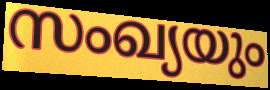
സംഖ്യയും